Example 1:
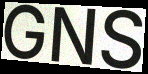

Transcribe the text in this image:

GNS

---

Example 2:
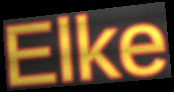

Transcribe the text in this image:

Elke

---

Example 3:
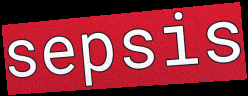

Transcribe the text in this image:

sepsis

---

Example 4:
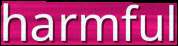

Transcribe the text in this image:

harmful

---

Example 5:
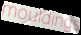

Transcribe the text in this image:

mouldings